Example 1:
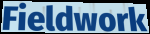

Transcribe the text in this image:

Fieldwork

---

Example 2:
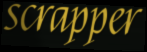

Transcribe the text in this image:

scrapper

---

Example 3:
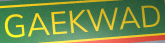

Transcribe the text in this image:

GAEKWAD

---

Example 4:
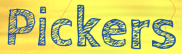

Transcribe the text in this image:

Pickers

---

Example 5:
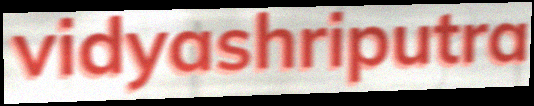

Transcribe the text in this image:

vidyashriputra